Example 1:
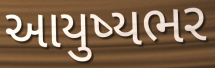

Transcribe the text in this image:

આયુષ્યભર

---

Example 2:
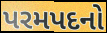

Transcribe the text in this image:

પરમપદનો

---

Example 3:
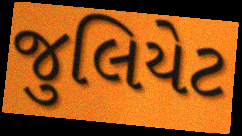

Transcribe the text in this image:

જુલિયેટ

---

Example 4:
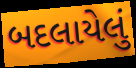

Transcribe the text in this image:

બદલાયેલું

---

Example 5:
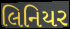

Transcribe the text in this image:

લિનિયર